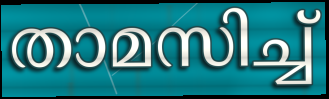
താമസിച്ച്